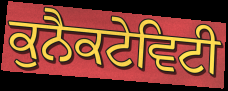
ਕੁਨੈਕਟੇਵਿਟੀ